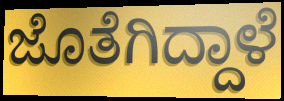
ಜೊತೆಗಿದ್ದಾಳೆ